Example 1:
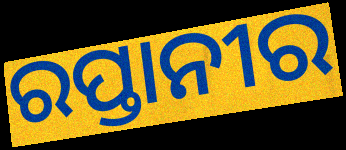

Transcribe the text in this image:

ରପ୍ତାନୀର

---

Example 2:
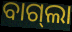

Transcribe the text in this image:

ବାଗ୍‍ଲା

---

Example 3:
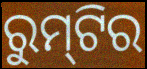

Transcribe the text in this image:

ରୁମ୍‌ଟିର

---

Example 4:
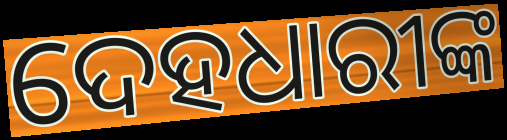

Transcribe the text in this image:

ଦେହଧାରୀଙ୍କ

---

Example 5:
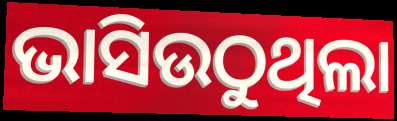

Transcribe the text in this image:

ଭାସିଉଠୁଥିଲା